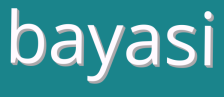
bayasi